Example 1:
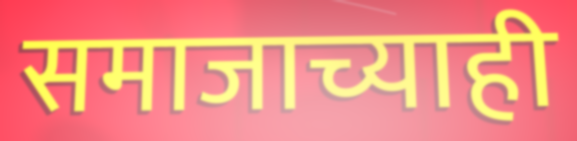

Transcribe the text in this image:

समाजाच्याही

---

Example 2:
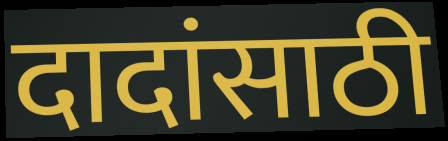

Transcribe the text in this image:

दादांसाठी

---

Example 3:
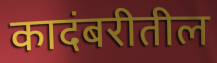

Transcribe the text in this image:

कादंबरीतील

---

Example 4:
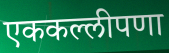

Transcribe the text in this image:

एककल्लीपणा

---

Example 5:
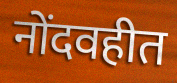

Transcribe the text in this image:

नोंदवहीत